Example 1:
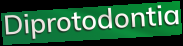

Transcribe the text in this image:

Diprotodontia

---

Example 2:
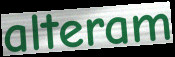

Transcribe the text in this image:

alteram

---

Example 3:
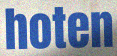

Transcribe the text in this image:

hoten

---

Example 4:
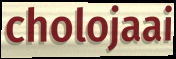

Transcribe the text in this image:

cholojaai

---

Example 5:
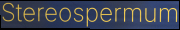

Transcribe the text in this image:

Stereospermum